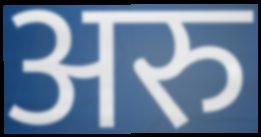
अरु